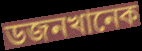
ডজনখানেক